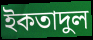
ইকতাদুল